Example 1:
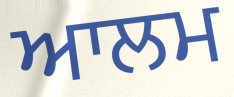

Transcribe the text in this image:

ਆਲਮ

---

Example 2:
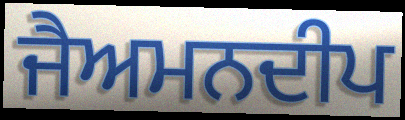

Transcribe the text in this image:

ਜੈਅਮਨਦੀਪ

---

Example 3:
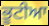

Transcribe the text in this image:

ਭੂਟੀਆ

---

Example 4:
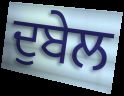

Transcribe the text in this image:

ਦੁਬੇਲ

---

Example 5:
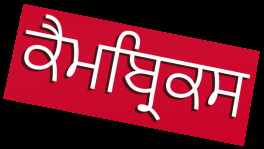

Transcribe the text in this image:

ਕੈਮਬ੍ਰਿਕਸ